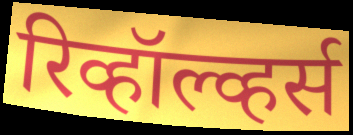
रिव्हॉल्व्हर्स